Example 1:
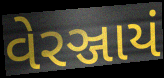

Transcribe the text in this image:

વેરઞ્જાયં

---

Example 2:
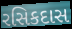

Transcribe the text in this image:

રસિકદાસ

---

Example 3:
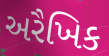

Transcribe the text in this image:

અરૈખિક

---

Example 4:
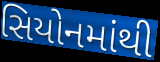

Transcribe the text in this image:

સિયોનમાંથી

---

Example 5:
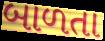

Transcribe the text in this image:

બાળતા